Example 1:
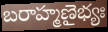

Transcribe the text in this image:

బరాహ్మణైభ్యః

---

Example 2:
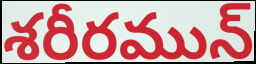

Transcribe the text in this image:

శరీరమున్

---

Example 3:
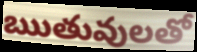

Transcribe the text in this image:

ఋతువులతో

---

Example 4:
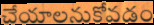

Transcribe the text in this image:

చేయాలనుకోవడం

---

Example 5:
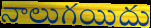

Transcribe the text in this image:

నాలుగయిదు